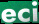
eci